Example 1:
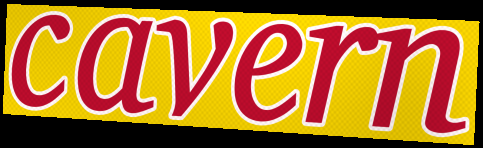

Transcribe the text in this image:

cavern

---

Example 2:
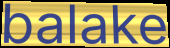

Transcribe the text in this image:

balake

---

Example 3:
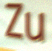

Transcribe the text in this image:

Zu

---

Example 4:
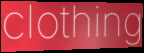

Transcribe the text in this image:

clothing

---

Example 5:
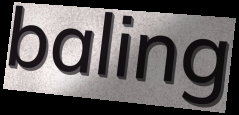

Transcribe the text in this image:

baling